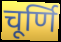
चूर्णि